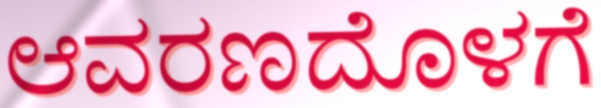
ಆವರಣದೊಳಗೆ